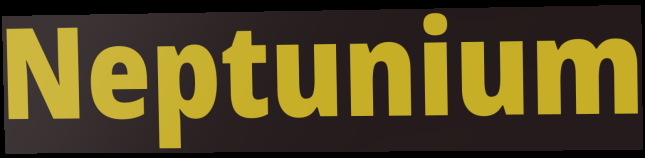
Neptunium